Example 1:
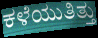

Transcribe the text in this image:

ಕಳೆಯುತಿತ್ತು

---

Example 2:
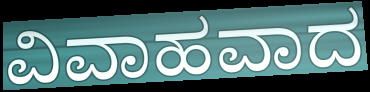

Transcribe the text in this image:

ವಿವಾಹವಾದ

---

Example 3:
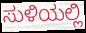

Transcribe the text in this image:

ಸುಳಿಯಲ್ಲಿ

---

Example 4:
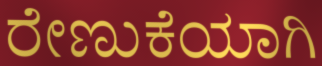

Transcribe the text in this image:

ರೇಣುಕೆಯಾಗಿ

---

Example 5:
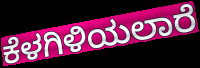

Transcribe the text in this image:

ಕೆಳಗಿಳಿಯಲಾರೆ